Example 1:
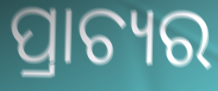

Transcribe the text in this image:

ପ୍ରାଚ୍ୟର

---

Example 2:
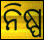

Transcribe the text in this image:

ନିଷ୍ପ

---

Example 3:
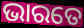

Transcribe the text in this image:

ଭାରତେ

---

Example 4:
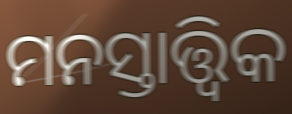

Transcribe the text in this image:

ମନସ୍ତାତ୍ତ୍ଵିକ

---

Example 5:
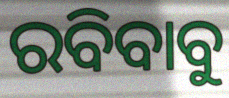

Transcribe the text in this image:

ରବିବାବୁ